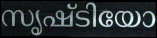
സൃഷ്ടിയോ